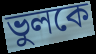
ভুলকে